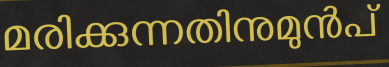
മരിക്കുന്നതിനുമുൻപ്